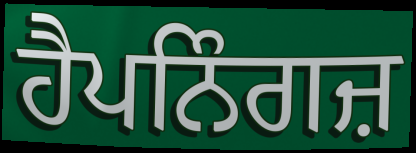
ਹੈਪਨਿੰਗਜ਼